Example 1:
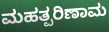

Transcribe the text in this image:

ಮಹತ್ಪರಿಣಾಮ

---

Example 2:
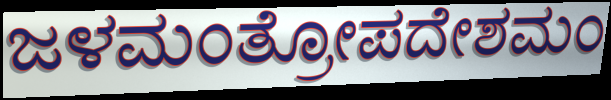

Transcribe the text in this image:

ಜಳಮಂತ್ರೋಪದೇಶಮಂ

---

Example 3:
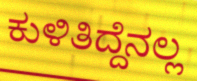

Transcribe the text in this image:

ಕುಳಿತಿದ್ದೆನಲ್ಲ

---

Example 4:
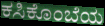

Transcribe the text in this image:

ಕಸಿಕೊಂಬೆಯ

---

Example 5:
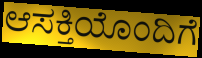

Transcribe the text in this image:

ಆಸಕ್ತಿಯೊಂದಿಗೆ